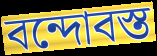
বন্দোবস্ত